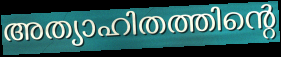
അത്യാഹിതത്തിന്റെ